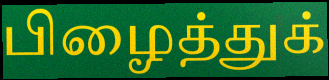
பிழைத்துக்